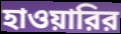
হাওয়ারির